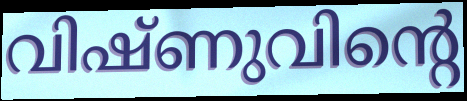
വിഷ്ണുവിന്റെ